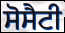
ਸੋਸੈਟੀ